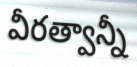
వీరత్వాన్నీ